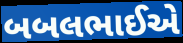
બબલભાઈએ